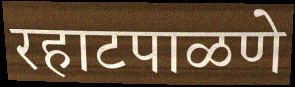
रहाटपाळणे